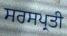
ਸਰਸਪ੍ਰਤੀ